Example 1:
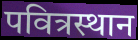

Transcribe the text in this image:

पवित्रस्‍थान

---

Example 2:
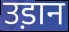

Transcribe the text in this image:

उ़डान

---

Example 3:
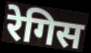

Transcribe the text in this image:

रेगिस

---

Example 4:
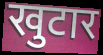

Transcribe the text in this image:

खुटार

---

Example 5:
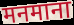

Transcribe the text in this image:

मनमाना